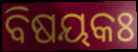
ବିଷୟକଃ